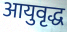
आयुवृद्ध